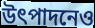
উৎপাদনেও